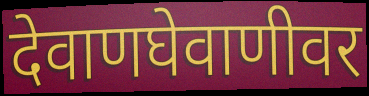
देवाणघेवाणीवर